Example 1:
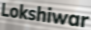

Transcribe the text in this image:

Lokshiwar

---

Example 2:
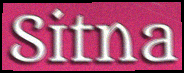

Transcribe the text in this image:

Sitna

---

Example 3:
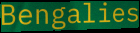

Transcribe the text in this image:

Bengalies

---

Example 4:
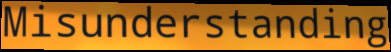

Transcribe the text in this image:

Misunderstanding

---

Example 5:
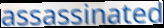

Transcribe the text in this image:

assassinated